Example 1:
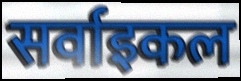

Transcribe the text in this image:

सर्वाइकल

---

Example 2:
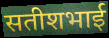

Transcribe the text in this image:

सतीशभाई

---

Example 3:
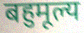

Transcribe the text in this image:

बहुमूल्य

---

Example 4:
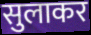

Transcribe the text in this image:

सुलाकर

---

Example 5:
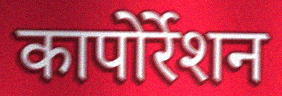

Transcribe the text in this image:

कापोर्रेशन